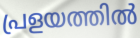
പ്രളയത്തിൽ